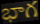
భాగ